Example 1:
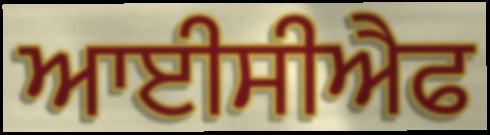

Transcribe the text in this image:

ਆਈਸੀਐਫ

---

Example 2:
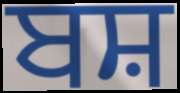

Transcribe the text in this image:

ਬਸ਼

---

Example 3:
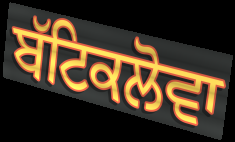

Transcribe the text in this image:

ਬੱਟਿਕਲੋਵਾ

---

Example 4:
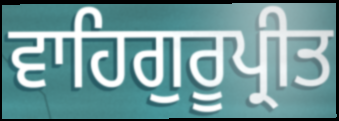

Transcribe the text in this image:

ਵਾਹਿਗੁਰੂਪ੍ਰੀਤ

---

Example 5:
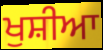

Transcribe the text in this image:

ਖੁਸ਼ੀਆ